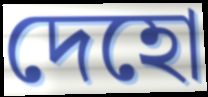
দেহো